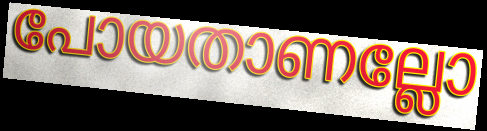
പോയതാണല്ലോ